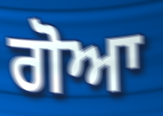
ਗੋਆ